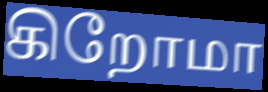
கிறோமா